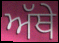
ਅੱਥੇ